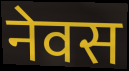
नेवस